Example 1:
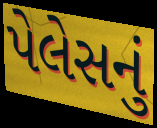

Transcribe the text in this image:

પેલેસનું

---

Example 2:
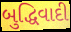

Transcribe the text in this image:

બુદ્ધિવાદી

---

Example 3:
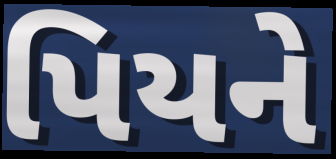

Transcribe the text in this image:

પિયને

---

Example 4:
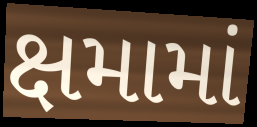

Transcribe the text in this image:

ક્ષમામાં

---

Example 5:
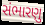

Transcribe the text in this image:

સંભારણુ